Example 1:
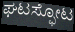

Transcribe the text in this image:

ಘಟಸ್ಫೋಟ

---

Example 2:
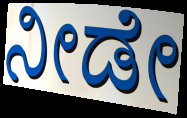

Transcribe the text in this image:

ನೀಡೇ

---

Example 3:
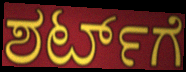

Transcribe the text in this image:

ಶರ್ಟ್‌ಗೆ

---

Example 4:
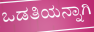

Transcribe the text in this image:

ಒಡತಿಯನ್ನಾಗಿ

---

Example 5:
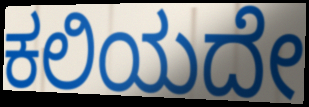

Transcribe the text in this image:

ಕಲಿಯದೇ